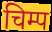
चिम्प